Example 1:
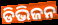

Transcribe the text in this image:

ଡିଭିଜନ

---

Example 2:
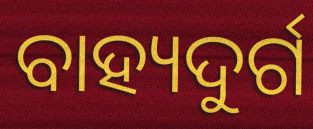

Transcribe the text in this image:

ବାହ୍ୟଦୁର୍ଗ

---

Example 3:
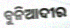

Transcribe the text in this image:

ବୁନିଆଦୀର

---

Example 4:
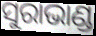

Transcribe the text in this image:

ସୁରାଭାଣ୍ଡ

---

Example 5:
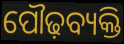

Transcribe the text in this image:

ପୌଢ଼ବ୍ୟକ୍ତି